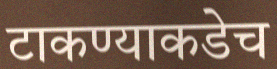
टाकण्याकडेच